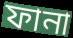
ফানা